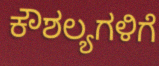
ಕೌಶಲ್ಯಗಳಿಗೆ